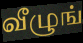
வீழுங்